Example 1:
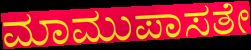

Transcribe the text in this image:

ಮಾಮುಪಾಸತೇ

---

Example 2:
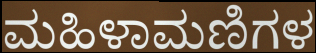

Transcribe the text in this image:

ಮಹಿಳಾಮಣಿಗಳ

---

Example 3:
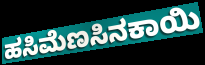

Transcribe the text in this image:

ಹಸಿಮೆಣಸಿನಕಾಯಿ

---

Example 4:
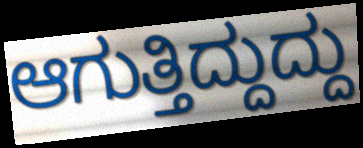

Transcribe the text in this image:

ಆಗುತ್ತಿದ್ದುದ್ದು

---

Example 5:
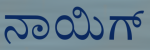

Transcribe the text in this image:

ನಾಯಿಗ್